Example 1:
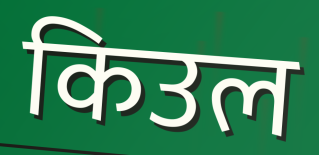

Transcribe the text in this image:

किउल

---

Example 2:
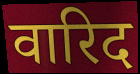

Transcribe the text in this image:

वारिद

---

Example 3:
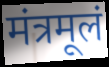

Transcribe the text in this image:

मंत्रमूलं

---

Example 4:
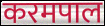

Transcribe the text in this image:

करमपाल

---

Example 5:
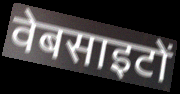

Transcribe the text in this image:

वेबसाइटों